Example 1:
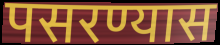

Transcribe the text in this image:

पसरण्यास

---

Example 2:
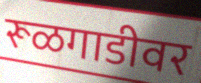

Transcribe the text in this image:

रूळगाडीवर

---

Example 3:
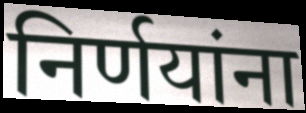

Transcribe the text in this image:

निर्णयांना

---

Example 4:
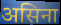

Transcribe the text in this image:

असिना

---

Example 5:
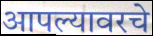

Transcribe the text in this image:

आपल्यावरचे